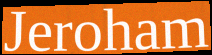
Jeroham